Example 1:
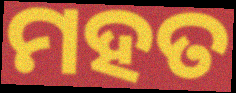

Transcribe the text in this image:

ମହତ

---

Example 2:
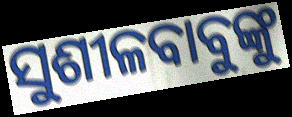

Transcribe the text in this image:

ସୁଶୀଳବାବୁଙ୍କୁ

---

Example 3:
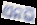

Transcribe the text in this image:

ଏନଭି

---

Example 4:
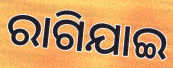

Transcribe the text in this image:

ରାଗିଯାଇ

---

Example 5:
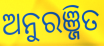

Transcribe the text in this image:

ଅନୁରଞ୍ଜିତ